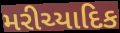
મરીચ્યાદિક